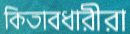
কিতাবধারীরা